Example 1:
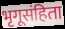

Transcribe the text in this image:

भृगूसंहिता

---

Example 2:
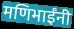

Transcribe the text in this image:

मणिभाईंनी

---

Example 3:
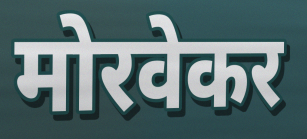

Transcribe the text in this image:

मोरवेकर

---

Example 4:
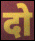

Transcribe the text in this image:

दो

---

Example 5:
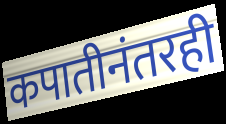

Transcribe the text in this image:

कपातीनंतरही